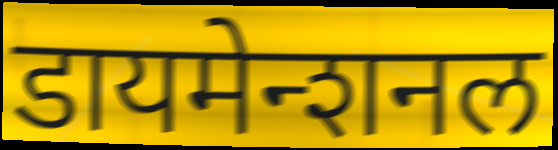
डायमेन्शनल